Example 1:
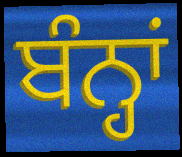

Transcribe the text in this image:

ਬੰਨ੍ਹਾਂ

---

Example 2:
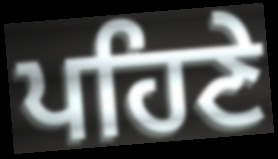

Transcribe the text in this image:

ਪਹਿਣੇ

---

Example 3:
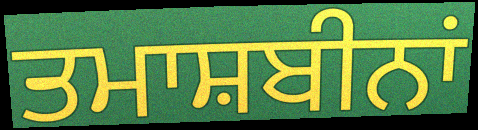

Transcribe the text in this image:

ਤਮਾਸ਼ਬੀਨਾਂ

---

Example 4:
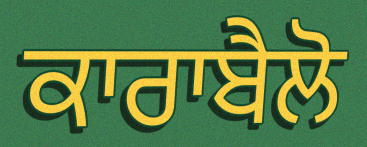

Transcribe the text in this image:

ਕਾਰਾਬੈਲੋ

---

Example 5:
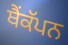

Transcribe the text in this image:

ਥੈਂਕੱਪਨ